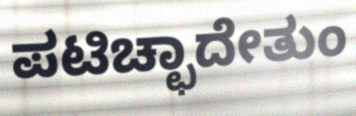
ಪಟಿಚ್ಛಾದೇತುಂ